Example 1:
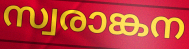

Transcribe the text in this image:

സ്വരാങ്കന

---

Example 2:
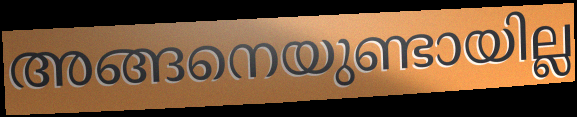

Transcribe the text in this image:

അങ്ങനെയുണ്ടായില്ല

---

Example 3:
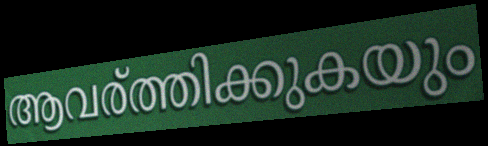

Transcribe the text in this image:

ആവര്ത്തിക്കുകയും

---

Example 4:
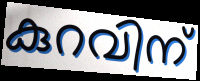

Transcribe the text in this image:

കുറവിന്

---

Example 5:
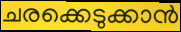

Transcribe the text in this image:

ചരക്കെടുക്കാൻ